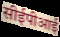
सीईपीआई